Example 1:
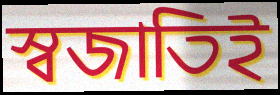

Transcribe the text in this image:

স্বজাতিই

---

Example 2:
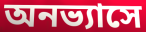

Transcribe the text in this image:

অনভ্যাসে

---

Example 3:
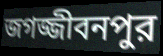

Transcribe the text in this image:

জগজ্জীবনপুর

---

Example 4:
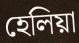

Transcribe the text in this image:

হেলিয়া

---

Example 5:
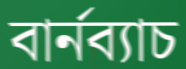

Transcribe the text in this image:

বার্নব্যাচ